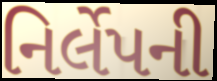
નિર્લેપની